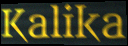
Kalika